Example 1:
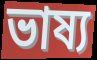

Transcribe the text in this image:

ভাষ্য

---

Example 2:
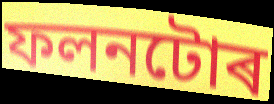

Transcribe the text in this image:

ফলনটোৰ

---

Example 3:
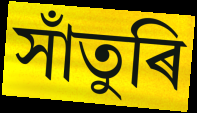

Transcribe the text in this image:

সাঁতুৰি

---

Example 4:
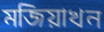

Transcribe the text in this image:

মজিয়াখন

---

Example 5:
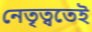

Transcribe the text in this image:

নেতৃত্বতেই